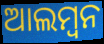
ଆଲମ୍ୱନ